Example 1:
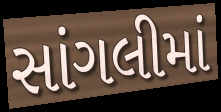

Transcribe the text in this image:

સાંગલીમાં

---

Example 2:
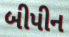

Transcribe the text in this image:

બીપીન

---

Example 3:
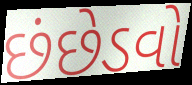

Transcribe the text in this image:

છંછેડવો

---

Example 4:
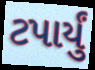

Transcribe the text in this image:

ટપાર્યું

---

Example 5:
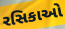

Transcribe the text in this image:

રસિકાઓ